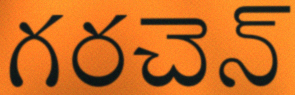
గరచెన్